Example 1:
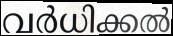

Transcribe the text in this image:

വർധിക്കൽ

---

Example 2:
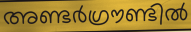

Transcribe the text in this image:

അണ്ടർഗ്രൗണ്ടിൽ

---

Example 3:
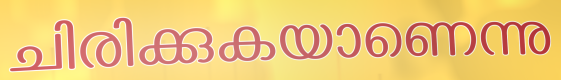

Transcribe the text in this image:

ചിരിക്കുകയാണെന്നു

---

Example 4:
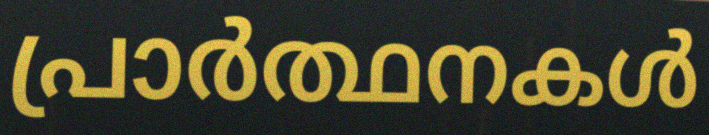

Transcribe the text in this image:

പ്രാർത്ഥനകൾ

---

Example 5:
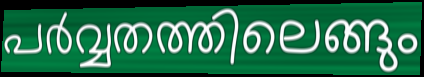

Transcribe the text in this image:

പർവ്വതത്തിലെങ്ങും